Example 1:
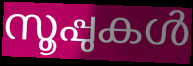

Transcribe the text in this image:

സൂപ്പുകൾ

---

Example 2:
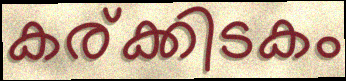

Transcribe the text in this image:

കര്ക്കിടകം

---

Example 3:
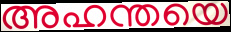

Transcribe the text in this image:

അഹന്തയെ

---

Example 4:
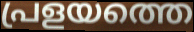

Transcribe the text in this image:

പ്രളയത്തെ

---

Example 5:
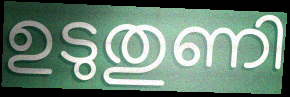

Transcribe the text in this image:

ഉടുതുണി